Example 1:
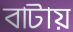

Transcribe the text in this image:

বাটায়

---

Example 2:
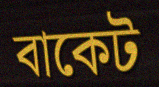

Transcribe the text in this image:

বাকেট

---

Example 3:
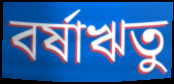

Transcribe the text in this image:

বর্ষাঋতু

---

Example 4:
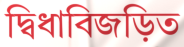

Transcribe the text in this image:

দ্বিধাবিজড়িত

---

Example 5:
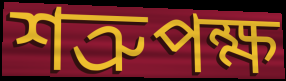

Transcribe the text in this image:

শত্রুপক্ষ